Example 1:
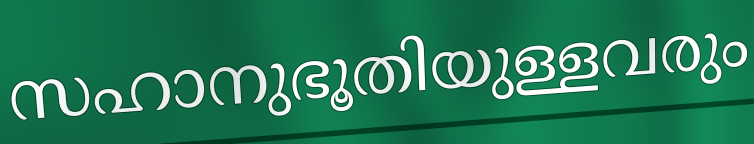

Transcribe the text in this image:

സഹാനുഭൂതിയുള്ളവരും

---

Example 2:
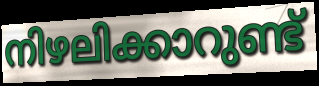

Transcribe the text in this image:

നിഴലിക്കാറുണ്ട്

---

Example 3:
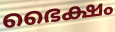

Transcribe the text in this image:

ഭൈക്ഷം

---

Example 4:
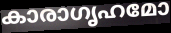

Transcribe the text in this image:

കാരാഗൃഹമോ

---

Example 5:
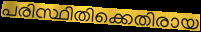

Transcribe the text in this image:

പരിസ്ഥിതിക്കെതിരായ